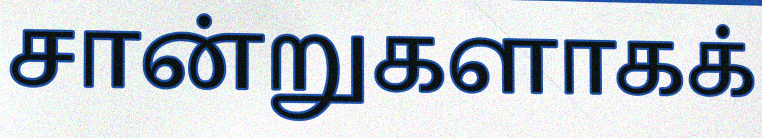
சான்றுகளாகக்